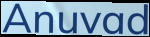
Anuvad